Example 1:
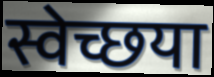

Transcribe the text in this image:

स्वेच्छया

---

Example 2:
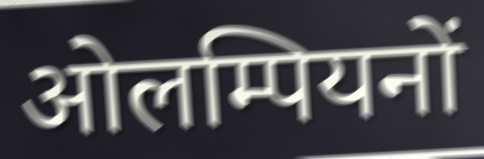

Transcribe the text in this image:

ओलम्पियनों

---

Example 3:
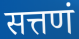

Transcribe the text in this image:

सत्तणं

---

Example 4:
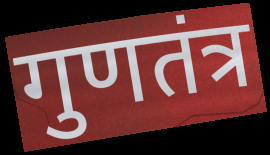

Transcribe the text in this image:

गुणतंत्र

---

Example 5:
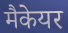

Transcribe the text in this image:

मैकेयर